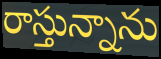
రాస్తున్నాను